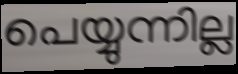
പെയ്യുന്നില്ല